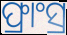
ଫ୍ରାଂସ୍ର